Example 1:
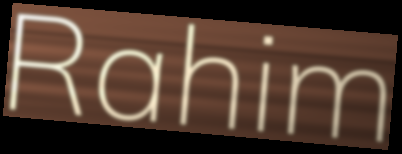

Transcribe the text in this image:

Rahim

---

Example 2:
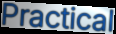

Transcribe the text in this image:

Practical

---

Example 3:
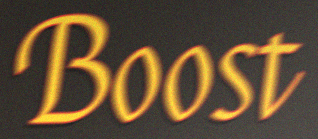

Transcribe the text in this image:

Boost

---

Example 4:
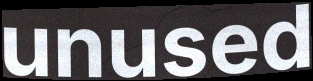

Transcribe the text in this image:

unused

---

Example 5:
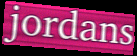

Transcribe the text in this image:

jordans